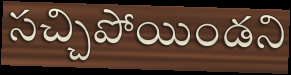
సచ్చిపోయిండని